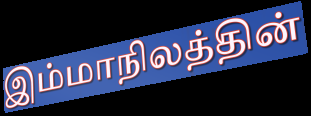
இம்மாநிலத்தின்